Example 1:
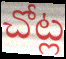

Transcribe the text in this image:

చోట్ల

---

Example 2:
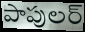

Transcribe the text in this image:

పాపులర్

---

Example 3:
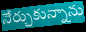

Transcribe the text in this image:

నేర్చుకున్నాను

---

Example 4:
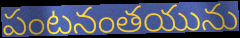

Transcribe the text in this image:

పంటనంతయును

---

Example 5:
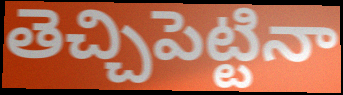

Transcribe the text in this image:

తెచ్చిపెట్టినా